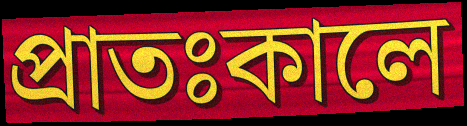
প্রাতঃকালে